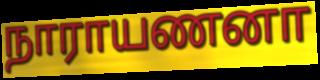
நாராயணனா